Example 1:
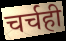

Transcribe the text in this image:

चर्चही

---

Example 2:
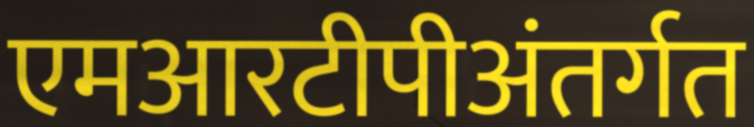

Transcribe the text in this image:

एमआरटीपीअंतर्गत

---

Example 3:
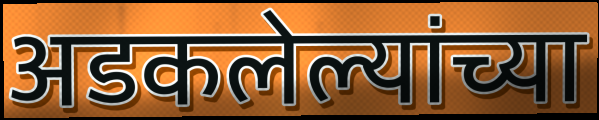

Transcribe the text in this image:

अडकलेल्यांच्या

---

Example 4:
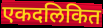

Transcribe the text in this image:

एकदलिकित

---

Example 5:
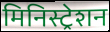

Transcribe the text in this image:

मिनिस्ट्रेशन